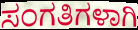
ಸಂಗತಿಗಳಾಗಿ